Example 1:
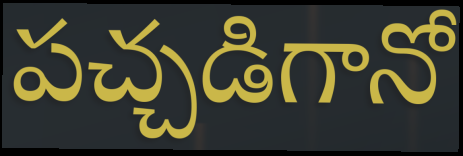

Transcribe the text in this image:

పచ్చడిగానో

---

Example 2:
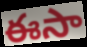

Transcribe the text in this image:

ఈసా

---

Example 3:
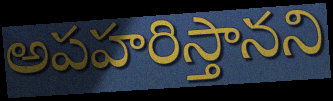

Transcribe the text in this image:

అపహరిస్తానని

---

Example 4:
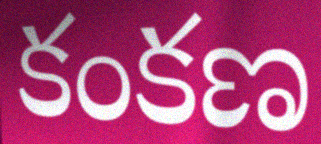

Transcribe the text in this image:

కంకణ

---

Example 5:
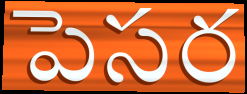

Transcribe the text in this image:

పెసర